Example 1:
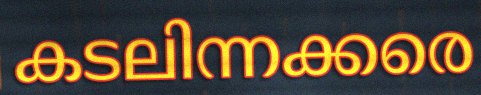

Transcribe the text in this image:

കടലിന്നക്കരെ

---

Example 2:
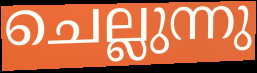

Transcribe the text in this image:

ചെല്ലുന്നു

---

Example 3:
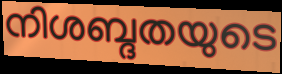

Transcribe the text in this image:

നിശബ്ദതയുടെ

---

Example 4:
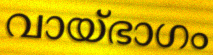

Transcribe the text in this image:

വായ്ഭാഗം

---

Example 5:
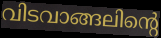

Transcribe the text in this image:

വിടവാങ്ങലിന്റെ